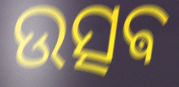
ଉତ୍ସଵ